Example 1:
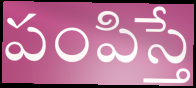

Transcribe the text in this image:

పంపిస్తే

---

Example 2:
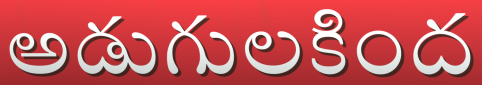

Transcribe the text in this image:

అడుగులకింద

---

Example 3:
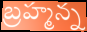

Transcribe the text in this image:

బ్రహ్మన్న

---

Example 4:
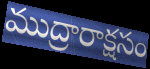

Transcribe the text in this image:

ముద్రారాక్షసం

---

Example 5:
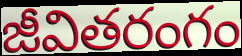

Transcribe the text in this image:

జీవితరంగం